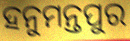
ହନୁମନ୍ତପୁର